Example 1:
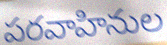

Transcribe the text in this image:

పరవాహినుల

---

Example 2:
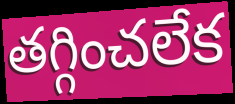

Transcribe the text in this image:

తగ్గించలేక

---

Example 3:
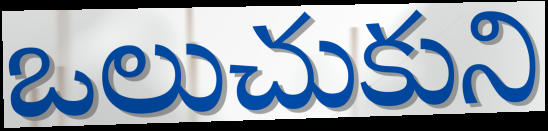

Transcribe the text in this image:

ఒలుచుకుని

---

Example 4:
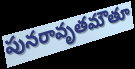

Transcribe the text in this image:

పునరావృతమౌతూ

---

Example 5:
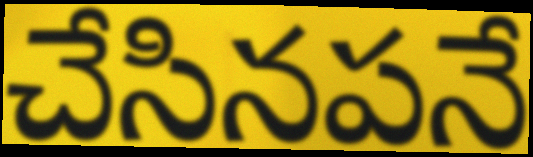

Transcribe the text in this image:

చేసినపనే